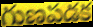
గుణపడక